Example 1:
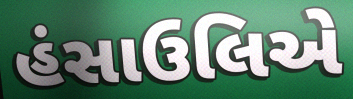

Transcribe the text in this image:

હંસાઉલિએ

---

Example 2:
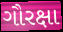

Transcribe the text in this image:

ગૌરક્ષા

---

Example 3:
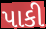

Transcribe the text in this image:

પાકી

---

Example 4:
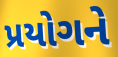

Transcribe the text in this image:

પ્રયોગને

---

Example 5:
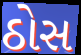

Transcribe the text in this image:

ઠોસ